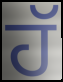
ਹੱ